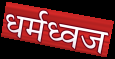
धर्मध्वज